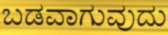
ಬಡವಾಗುವುದು